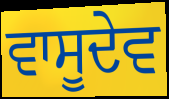
ਵਾਸੂਦੇਵ